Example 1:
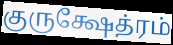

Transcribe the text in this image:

குருக்ஷேத்ரம்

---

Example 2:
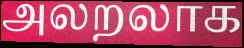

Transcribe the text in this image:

அலறலாக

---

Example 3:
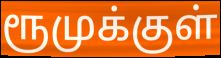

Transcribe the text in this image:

ரூமுக்குள்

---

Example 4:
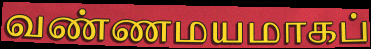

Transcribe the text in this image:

வண்ணமயமாகப்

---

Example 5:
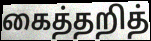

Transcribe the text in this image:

கைத்தறித்